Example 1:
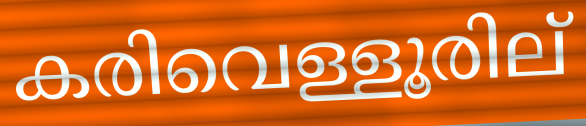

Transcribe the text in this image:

കരിവെള്ളൂരില്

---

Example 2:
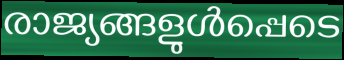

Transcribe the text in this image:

രാജ്യങ്ങളുൾപ്പെടെ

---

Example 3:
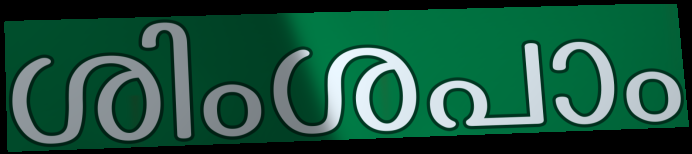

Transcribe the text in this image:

ശിംശപാം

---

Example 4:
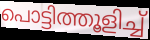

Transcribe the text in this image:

പൊട്ടിത്തൂളിച്ച്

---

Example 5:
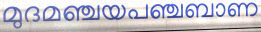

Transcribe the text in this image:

മുദമഞ്ചയപഞ്ചബാണ